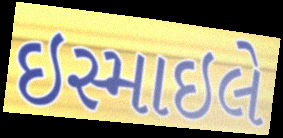
ઇસ્માઇલે